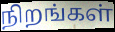
நிறங்கள்